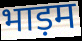
भाड़म